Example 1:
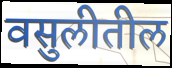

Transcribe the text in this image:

वसुलीतील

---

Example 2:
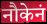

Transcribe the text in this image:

नौकेनं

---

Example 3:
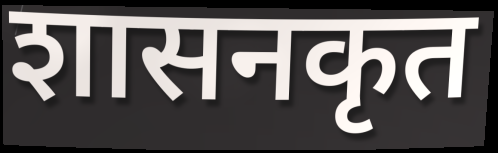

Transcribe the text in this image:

शासनकृत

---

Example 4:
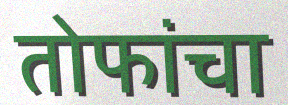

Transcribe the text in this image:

तोफांचा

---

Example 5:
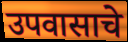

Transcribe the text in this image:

उपवासाचे